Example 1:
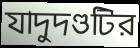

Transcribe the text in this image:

যাদুদণ্ডটির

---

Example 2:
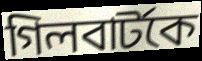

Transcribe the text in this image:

গিলবার্টকে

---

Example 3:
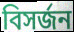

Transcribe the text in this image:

বিসর্জন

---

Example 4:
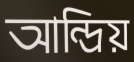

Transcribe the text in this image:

আন্দ্রিয়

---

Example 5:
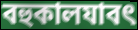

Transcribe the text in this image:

বহুকালযাবৎ